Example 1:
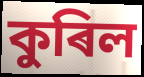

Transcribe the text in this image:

কুৰিল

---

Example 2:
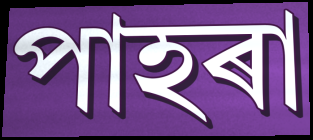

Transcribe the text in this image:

পাহৰা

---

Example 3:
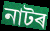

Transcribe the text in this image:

নাটৰ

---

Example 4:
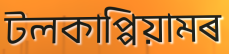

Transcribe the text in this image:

টলকাপ্পিয়ামৰ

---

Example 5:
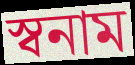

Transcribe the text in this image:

স্বনাম